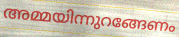
അമ്മയിന്നുറങ്ങേണം